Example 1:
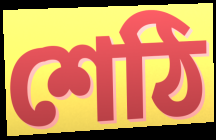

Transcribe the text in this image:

শেঠি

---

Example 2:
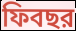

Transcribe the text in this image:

ফিবছর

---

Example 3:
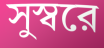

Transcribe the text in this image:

সুস্বরে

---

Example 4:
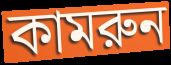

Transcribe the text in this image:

কামরুন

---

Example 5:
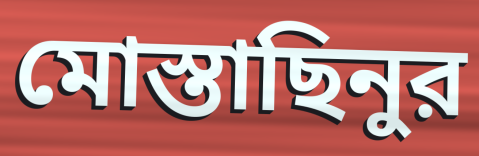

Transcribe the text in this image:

মোস্তাছিনুর